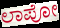
ಲಾಪೋ